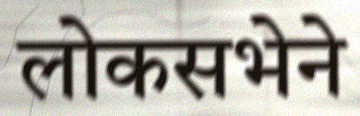
लोकसभेने